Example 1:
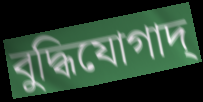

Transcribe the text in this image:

বুদ্ধিযোগাদ্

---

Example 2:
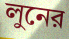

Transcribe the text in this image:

লুনের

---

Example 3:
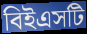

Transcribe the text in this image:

বিইএসটি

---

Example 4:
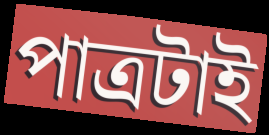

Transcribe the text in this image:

পাত্রটাই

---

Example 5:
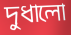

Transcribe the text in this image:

দুধালো